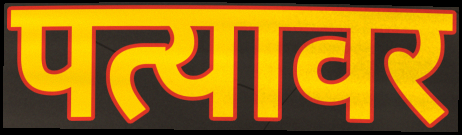
पत्यावर